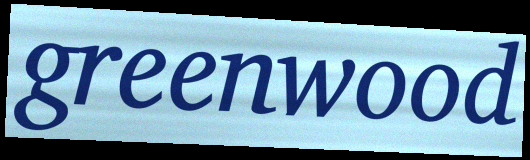
greenwood